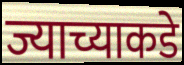
ज्याच्याकडे